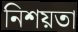
নিশয়তা